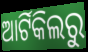
ଆର୍ଟିକିଲରୁ